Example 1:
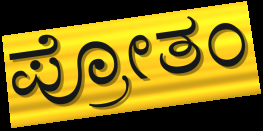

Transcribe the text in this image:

ಪ್ರೋತಂ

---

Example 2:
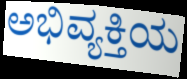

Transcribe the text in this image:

ಅಭಿವ್ಯಕ್ತಿಯ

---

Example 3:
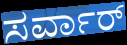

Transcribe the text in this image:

ಸರ್ವಾರ್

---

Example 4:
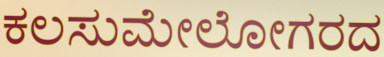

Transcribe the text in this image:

ಕಲಸುಮೇಲೋಗರದ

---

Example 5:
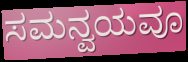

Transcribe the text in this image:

ಸಮನ್ವಯವೂ